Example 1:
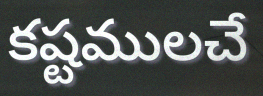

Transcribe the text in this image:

కష్టములచే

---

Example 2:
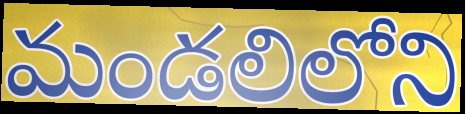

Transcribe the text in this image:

మండలిలోని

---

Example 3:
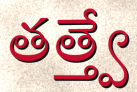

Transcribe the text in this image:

తత్త్వే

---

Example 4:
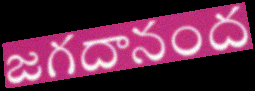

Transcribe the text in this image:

జగదానంద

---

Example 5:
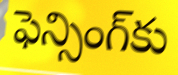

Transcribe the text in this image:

ఫెన్సింగ్‌కు